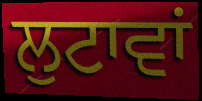
ਲੁਟਾਵਾਂ